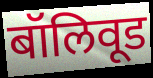
बॉलिवूड